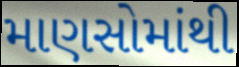
માણસોમાંથી